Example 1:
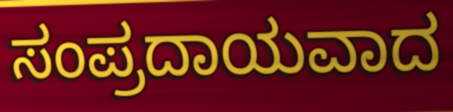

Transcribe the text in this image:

ಸಂಪ್ರದಾಯವಾದ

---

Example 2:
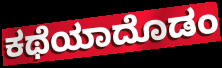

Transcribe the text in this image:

ಕಥೆಯಾದೊಡಂ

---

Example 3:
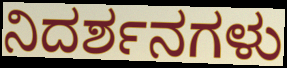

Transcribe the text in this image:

ನಿದರ್ಶನಗಳು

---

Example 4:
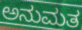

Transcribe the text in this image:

ಅನುಮತ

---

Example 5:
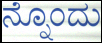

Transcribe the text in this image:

ನ್ನೊಂದು